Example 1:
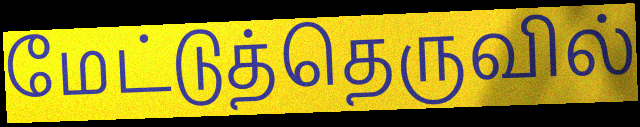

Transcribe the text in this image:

மேட்டுத்தெருவில்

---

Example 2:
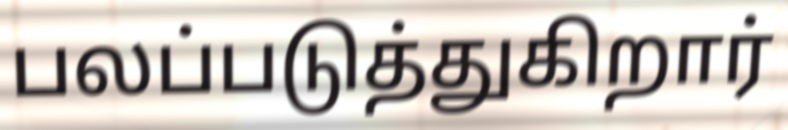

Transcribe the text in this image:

பலப்படுத்துகிறார்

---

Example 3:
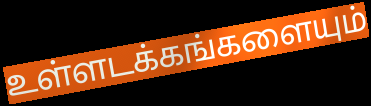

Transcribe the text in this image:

உள்ளடக்கங்களையும்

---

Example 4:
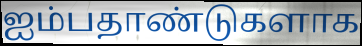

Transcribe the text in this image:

ஐம்பதாண்டுகளாக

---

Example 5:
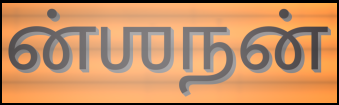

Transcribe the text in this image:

ன்ஶநன்